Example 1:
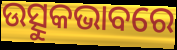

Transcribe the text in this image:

ଉତ୍ସୁକଭାବରେ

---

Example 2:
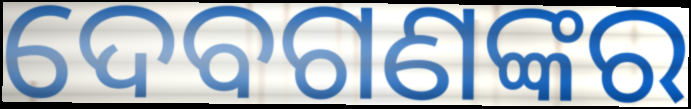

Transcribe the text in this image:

ଦେବଗଣଙ୍କର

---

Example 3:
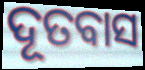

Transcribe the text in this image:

ଦୂତବାସ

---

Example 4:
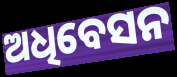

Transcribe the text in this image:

ଅଧିବେସନ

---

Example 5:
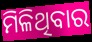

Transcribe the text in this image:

ମିଳିଥିବାର